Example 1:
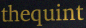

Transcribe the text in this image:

thequint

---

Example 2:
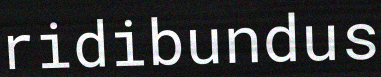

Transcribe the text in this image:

ridibundus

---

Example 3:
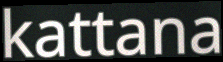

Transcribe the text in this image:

kattana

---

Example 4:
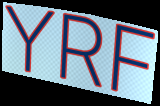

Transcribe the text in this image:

YRF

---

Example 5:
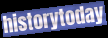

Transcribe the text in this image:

historytoday